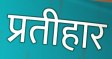
प्रतीहार